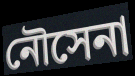
নৌসেনা